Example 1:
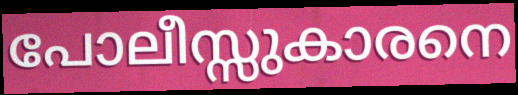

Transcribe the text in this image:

പോലീസ്സുകാരനെ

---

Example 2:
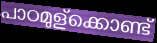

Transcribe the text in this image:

പാഠമുള്ക്കൊണ്ട്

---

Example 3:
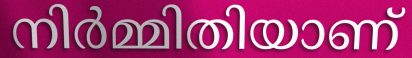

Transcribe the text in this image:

നിർമ്മിതിയാണ്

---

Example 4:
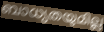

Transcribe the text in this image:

ബാധ്യതയുമില്ല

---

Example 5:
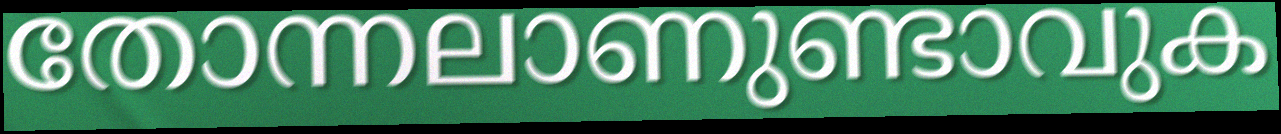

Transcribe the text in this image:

തോന്നലാണുണ്ടാവുക